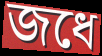
জধে